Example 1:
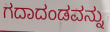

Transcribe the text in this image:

ಗದಾದಂಡವನ್ನು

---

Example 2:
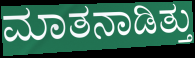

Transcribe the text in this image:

ಮಾತನಾಡಿತ್ತು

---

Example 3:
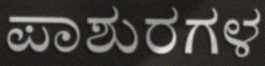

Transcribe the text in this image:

ಪಾಶುರಗಳ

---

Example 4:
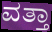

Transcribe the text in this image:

ವತ್ತಾ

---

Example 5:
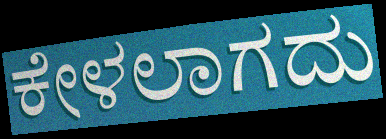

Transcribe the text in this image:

ಕೇಳಲಾಗದು